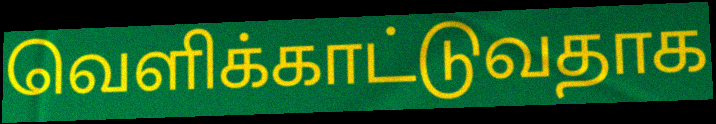
வெளிக்காட்டுவதாக